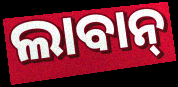
ଲାବାନ୍